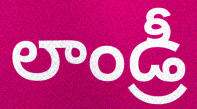
లాండ్రీ